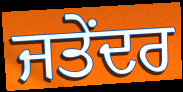
ਜਤੇਂਦਰ